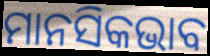
ମାନସିକଭାବ